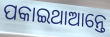
ପକାଇଥାଆନ୍ତେ